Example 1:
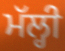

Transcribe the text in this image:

ਮੱਲ੍ਹੀ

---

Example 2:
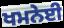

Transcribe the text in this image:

ਖਮਨੇਈ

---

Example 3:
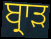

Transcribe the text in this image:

ਬ੍ਰਾੜ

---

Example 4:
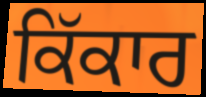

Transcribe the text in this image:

ਕਿੱਕਾਰ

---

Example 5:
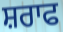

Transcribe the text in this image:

ਸ਼ਰਾਫ